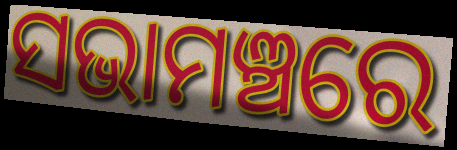
ସଭାମଞ୍ଚରେ